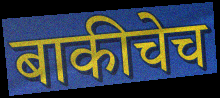
बाकीचेच